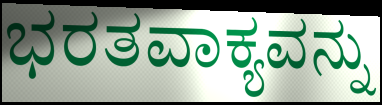
ಭರತವಾಕ್ಯವನ್ನು